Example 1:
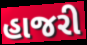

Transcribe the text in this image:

હાજરી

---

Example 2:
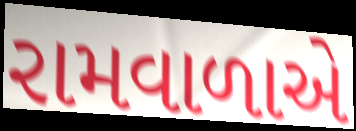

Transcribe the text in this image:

રામવાળાએ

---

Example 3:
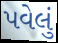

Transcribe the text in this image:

પવેલું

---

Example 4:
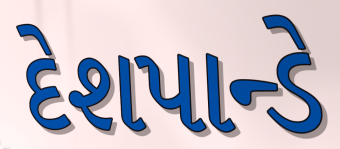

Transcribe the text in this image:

દેશપાન્ડે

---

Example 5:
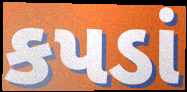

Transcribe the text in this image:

કપડાં